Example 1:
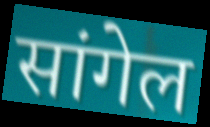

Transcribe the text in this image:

सांगेल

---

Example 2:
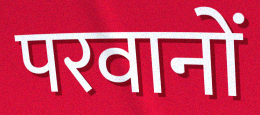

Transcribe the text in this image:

परवानों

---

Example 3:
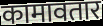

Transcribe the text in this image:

कामावतार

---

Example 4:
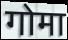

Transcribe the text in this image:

गोमा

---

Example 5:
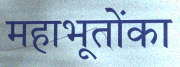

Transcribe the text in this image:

महाभूतोंका